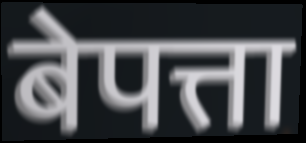
बेपत्ता